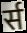
र्स